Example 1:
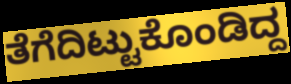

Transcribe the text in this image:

ತೆಗೆದಿಟ್ಟುಕೊಂಡಿದ್ದ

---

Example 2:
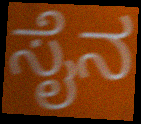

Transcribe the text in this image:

ಸೈನ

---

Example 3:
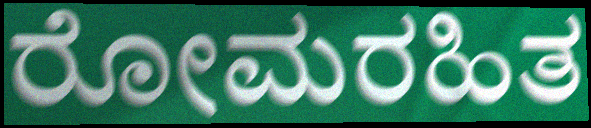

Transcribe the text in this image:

ರೋಮರಹಿತ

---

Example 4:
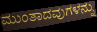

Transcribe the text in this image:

ಮುಂತಾದವುಗಳನ್ನು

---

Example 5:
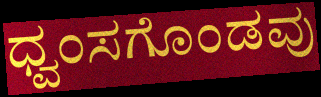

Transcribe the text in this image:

ಧ್ವಂಸಗೊಂಡವು